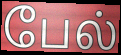
பேல்